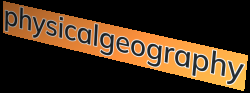
physicalgeography